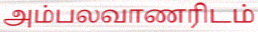
அம்பலவாணரிடம்